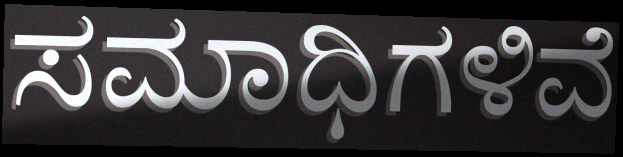
ಸಮಾಧಿಗಳಿವೆ